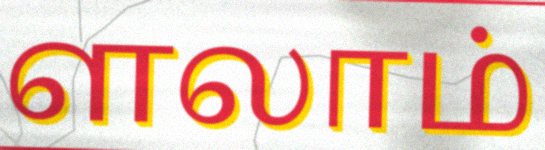
ளலாம்